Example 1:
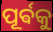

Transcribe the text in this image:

ପୂର୍ଵକୁ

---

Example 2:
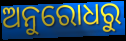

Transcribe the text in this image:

ଅନୁରୋଧରୁ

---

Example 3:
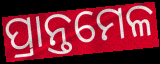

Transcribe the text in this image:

ପ୍ରାନ୍ତମେଳ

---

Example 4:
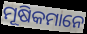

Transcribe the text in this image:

ମୂଷିକମାନେ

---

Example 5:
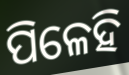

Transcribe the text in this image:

ପିଳେହି